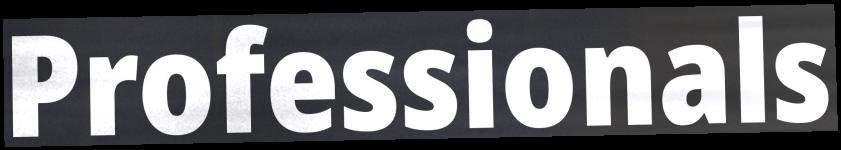
Professionals